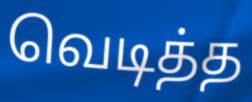
வெடித்த